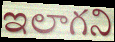
ఇలాగని